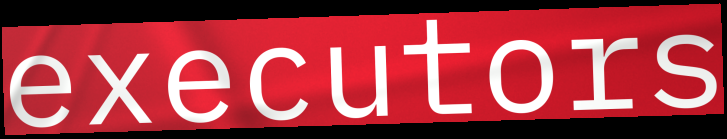
executors